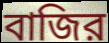
বাজির